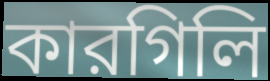
কারগিলি